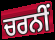
ਚਰਨੀਂ